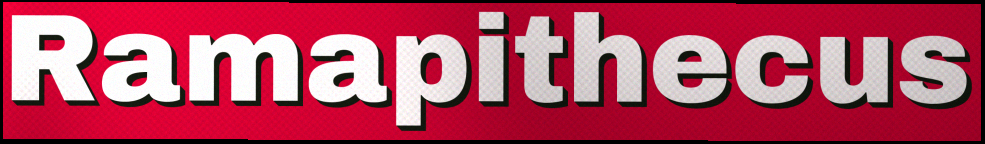
Ramapithecus